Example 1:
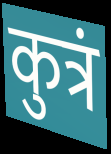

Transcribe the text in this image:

कुत्रं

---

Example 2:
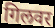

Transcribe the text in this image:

गिलवर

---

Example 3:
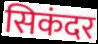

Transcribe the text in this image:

सिकंदर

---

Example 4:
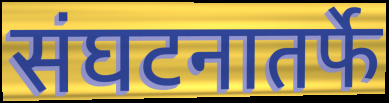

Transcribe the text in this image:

संघटनातर्फे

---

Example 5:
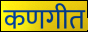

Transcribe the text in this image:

कणगीत